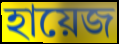
হায়েজ